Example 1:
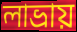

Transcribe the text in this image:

লাভ্ৰায়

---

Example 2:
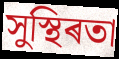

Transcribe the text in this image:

সুস্থিৰতা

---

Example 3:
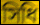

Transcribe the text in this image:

সিধি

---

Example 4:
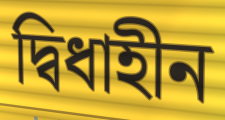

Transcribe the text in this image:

দ্বিধাহীন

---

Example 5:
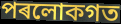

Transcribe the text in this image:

পৰলোকগত